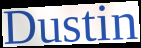
Dustin